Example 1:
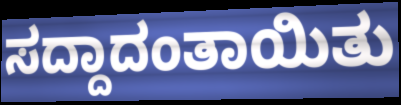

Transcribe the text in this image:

ಸದ್ದಾದಂತಾಯಿತು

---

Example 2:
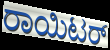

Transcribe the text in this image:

ರಾಯಿಟರ್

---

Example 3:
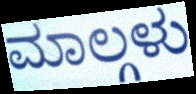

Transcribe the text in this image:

ಮಾಲ್ಗಳು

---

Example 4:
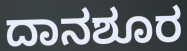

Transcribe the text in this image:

ದಾನಶೂರ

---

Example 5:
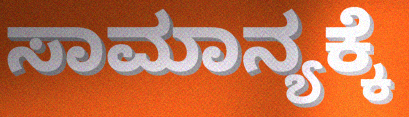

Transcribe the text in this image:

ಸಾಮಾನ್ಯಕ್ಕೆ